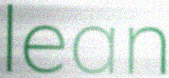
lean